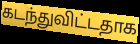
கடந்துவிட்டதாக